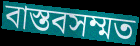
বাস্তবসম্মত